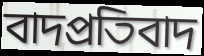
বাদপ্রতিবাদ